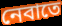
নেবাতে